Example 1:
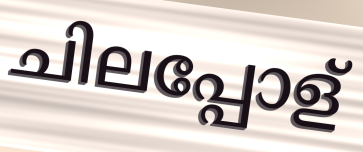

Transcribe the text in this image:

ചിലപ്പോള്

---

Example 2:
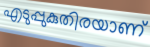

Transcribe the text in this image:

എടുപ്പുകുതിരയാണ്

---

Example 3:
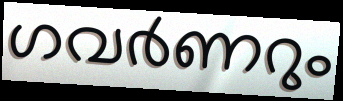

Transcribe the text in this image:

ഗവർണറും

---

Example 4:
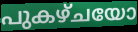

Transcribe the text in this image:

പുകഴ്ചയോ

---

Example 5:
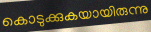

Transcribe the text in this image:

കൊടുക്കുകയായിരുന്നു